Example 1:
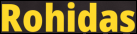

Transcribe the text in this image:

Rohidas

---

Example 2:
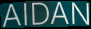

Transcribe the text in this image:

AIDAN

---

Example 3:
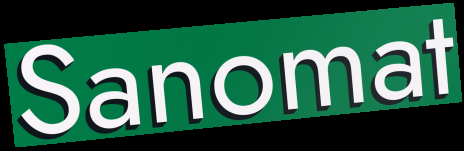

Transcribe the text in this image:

Sanomat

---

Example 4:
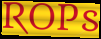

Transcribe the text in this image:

ROPs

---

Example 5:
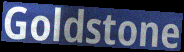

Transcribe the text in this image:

Goldstone